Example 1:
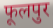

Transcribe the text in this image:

फूलपुर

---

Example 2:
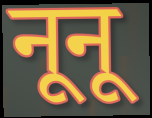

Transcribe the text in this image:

नूनू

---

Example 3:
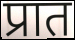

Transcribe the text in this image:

प्रात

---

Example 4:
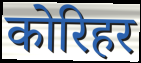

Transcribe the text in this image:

कोरिहर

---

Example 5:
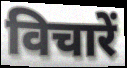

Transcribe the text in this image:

विचारें